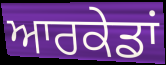
ਆਰਕੇਡਾਂ